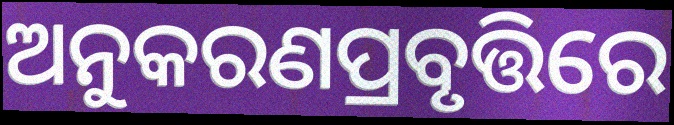
ଅନୁକରଣପ୍ରବୃତ୍ତିରେ